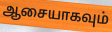
ஆசையாகவும்